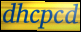
dhcpcd